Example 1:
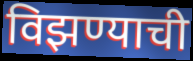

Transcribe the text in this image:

विझण्याची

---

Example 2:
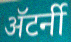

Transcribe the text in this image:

ॲटर्नी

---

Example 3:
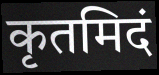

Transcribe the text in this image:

कृतमिदं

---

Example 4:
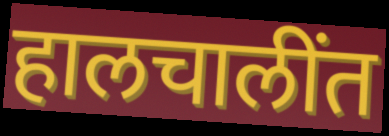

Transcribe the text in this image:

हालचालींत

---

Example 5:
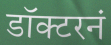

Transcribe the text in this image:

डॉक्टरनं